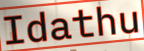
Idathu